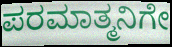
ಪರಮಾತ್ಮನಿಗೇ